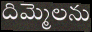
దిమ్మెలను